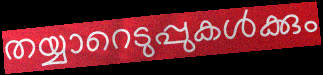
തയ്യാറെടുപ്പുകൾക്കും